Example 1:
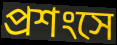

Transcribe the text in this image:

প্রশংসে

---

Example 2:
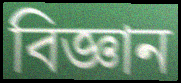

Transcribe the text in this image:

বিজ্ঞান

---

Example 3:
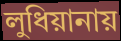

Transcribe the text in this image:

লুধিয়ানায়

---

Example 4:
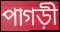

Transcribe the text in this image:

পাগড়ী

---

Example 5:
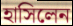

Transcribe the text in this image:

হাসিলেন